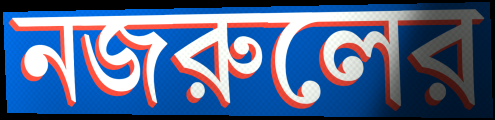
নজরুলের